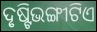
ଦୃଷ୍ଟିଭଙ୍ଗୀଟିଏ